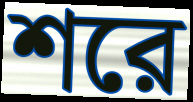
শরে